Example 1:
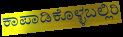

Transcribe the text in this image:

ಕಾಪಾಡಿಕೊಳ್ಳಬಲ್ಲಿರಿ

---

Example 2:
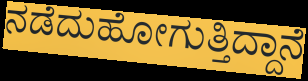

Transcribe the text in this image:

ನಡೆದುಹೋಗುತ್ತಿದ್ದಾನೆ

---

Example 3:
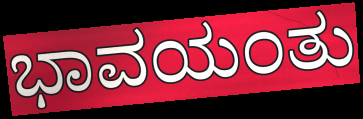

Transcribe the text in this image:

ಭಾವಯಂತು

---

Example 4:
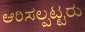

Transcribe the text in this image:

ಆರಿಸಲ್ಪಟ್ಟರು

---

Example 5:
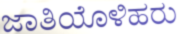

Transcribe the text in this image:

ಜಾತಿಯೊಳಿಹರು